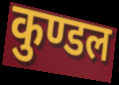
कुण्डल